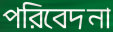
পরিবেদনা